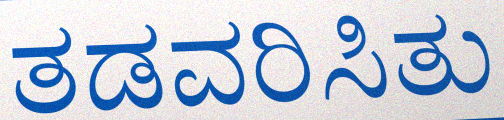
ತಡವರಿಸಿತು